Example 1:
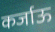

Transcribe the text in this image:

कर्जाऊ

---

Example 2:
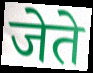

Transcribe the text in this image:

जेते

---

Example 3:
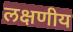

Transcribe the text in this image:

लक्षणीय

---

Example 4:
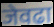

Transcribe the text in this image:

जेवढा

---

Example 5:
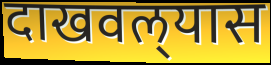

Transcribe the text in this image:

दाखवल्यास